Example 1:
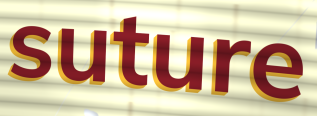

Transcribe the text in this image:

suture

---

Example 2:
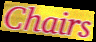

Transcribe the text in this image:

Chairs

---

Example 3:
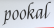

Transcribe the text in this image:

pookal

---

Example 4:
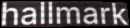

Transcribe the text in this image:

hallmark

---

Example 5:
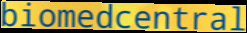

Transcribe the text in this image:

biomedcentral